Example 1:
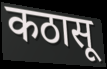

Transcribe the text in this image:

कठासू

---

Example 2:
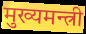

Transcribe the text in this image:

मुख्यमन्त्री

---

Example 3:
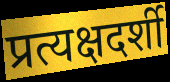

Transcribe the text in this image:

प्रत्यक्षदर्शी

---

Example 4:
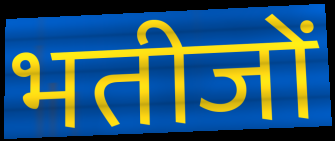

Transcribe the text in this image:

भतीजों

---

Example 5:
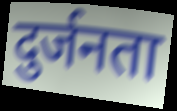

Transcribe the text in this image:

दुर्जनता